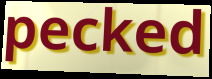
pecked